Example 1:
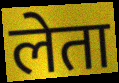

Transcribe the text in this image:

लेता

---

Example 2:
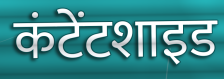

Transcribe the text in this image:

कंटेंटशाइड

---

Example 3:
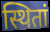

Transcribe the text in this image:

स्थितां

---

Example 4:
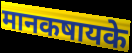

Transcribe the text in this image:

मानकषायके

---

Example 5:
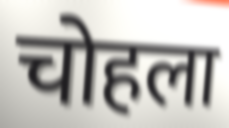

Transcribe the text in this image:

चोहला